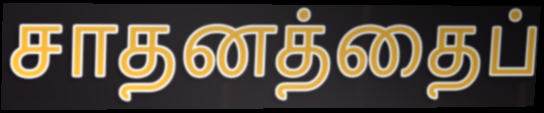
சாதனத்தைப்